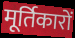
मूर्तिकारों